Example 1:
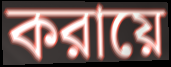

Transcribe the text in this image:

করায়ে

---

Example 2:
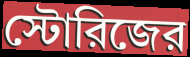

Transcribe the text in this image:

স্টোরিজের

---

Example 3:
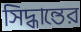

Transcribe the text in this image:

সিদ্ধান্তের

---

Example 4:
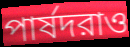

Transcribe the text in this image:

পার্ষদরাও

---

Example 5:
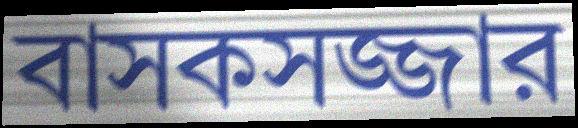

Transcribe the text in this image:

বাসকসজ্জার